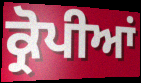
ਕ੍ਰੋਪੀਆਂ